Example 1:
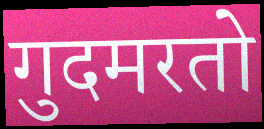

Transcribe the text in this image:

गुदमरतो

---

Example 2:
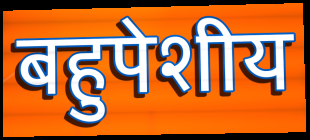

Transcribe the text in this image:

बहुपेशीय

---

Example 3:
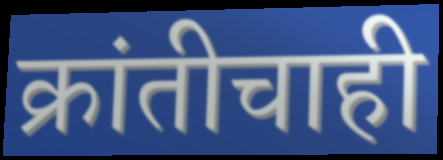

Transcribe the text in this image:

क्रांतीचाही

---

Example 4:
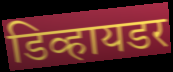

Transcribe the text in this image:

डिव्हायडर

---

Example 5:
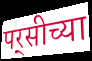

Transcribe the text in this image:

पर्सीच्या